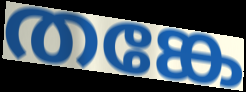
തങ്കേ